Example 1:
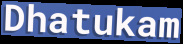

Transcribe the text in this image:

Dhatukam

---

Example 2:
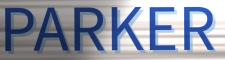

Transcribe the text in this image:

PARKER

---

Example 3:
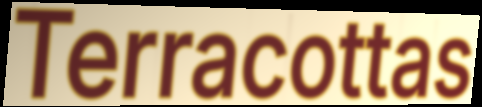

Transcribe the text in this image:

Terracottas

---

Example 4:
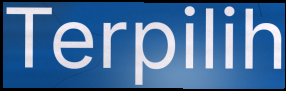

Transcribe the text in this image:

Terpilih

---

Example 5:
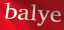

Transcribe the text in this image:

balye